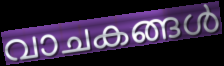
വാചകങ്ങൾ